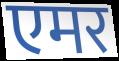
एमर